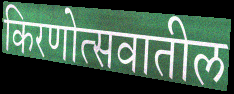
किरणोत्सवातील